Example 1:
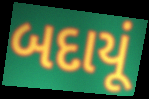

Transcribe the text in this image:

બદાયૂં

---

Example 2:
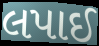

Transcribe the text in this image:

લપાઈ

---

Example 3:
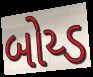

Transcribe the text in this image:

બોય્ડ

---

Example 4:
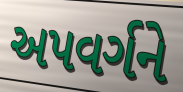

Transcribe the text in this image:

અપવર્ગને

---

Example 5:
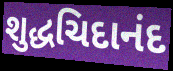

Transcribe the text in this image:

શુદ્ધચિદાનંદ